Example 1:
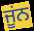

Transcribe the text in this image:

ਜੂਂਨ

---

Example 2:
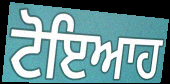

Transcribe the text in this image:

ਟੋਇਆਹ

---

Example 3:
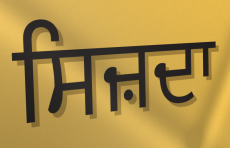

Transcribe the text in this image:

ਸਿਜ਼ਦਾ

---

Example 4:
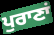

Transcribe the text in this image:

ਪੁਰਾਣਾਂ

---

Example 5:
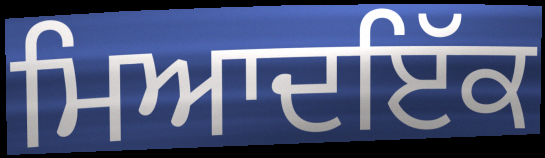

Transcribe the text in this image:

ਮਿਆਦਇੱਕ